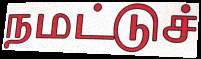
நமட்டுச்